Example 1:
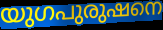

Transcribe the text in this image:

യുഗപുരുഷനെ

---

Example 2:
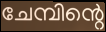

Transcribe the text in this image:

ചേമ്പിന്റെ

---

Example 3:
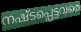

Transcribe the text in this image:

നഷ്ടപ്പെട്ടവരെ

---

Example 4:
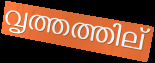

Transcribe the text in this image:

വൃത്തത്തില്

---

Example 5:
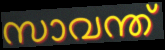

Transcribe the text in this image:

സാവന്ത്